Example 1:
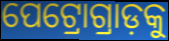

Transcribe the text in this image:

ପେଟ୍ରୋଗ୍ରାଡ଼କୁ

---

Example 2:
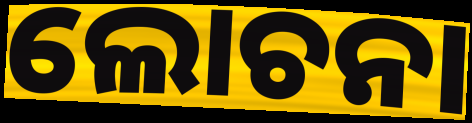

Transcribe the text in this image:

ଲୋଚନା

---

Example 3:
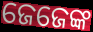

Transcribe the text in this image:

ଜେଜେଙ୍କ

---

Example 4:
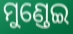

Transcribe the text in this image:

ମୁଣ୍ଡେଇ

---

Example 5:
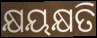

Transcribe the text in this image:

କ୍ଷୟକ୍ଷତି